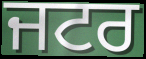
ਜਟਰ